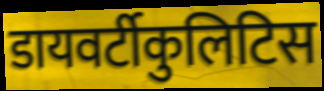
डायवर्टीकुलिटिस